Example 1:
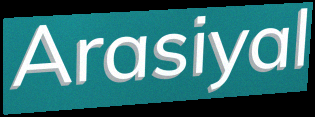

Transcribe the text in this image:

Arasiyal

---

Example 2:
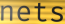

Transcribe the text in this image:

nets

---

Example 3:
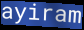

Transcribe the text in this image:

ayiram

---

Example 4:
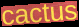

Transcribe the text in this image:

cactus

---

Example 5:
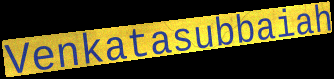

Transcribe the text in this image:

Venkatasubbaiah